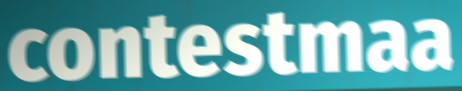
contestmaa